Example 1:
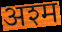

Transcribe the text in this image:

अश्म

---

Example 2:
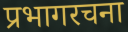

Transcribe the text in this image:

प्रभागरचना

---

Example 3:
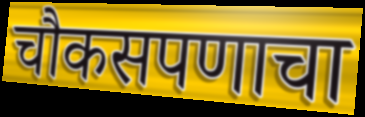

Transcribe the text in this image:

चौकसपणाचा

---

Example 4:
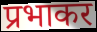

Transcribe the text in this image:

प्रभाकर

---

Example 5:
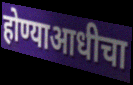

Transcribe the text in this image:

होण्याआधीचा